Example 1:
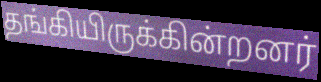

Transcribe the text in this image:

தங்கியிருக்கின்றனர்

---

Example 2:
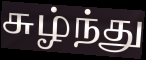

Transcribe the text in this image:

சுழ்ந்து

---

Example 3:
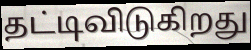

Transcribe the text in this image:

தட்டிவிடுகிறது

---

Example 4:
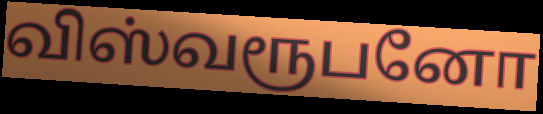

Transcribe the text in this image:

விஸ்வரூபனோ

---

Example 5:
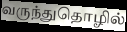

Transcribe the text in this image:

வருந்துதொழில்